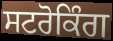
ਸਟਰੋਕਿੰਗ